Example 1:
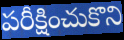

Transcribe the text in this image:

పరీక్షించుకొని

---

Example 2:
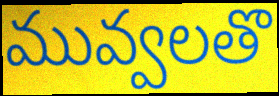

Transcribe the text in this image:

మువ్వలతొ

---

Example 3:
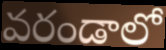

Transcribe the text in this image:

వరండాలో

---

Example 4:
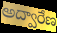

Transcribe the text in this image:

అద్వారేణ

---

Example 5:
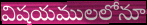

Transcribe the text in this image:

విషయములలోనూ